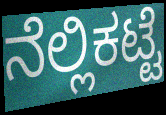
ನೆಲ್ಲಿಕಟ್ಟೆ